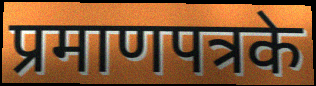
प्रमाणपत्रके